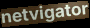
netvigator